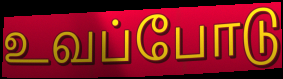
உவப்போடு